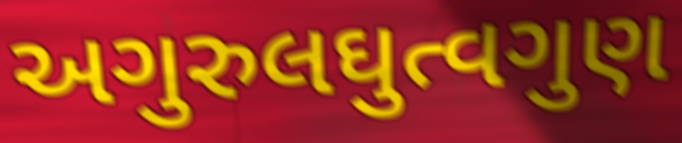
અગુરુલઘુત્વગુણ